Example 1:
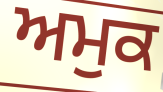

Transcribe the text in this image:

ਅਮੁਕ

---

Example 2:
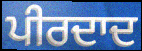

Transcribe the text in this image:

ਪੀਰਦਾਦ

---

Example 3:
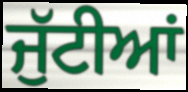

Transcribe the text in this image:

ਜੁੱਟੀਆਂ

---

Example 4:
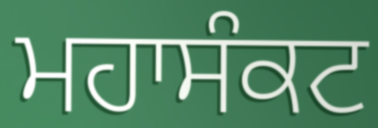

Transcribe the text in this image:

ਮਹਾਸੰਕਟ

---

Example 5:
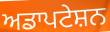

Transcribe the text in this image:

ਅਡਾਪਟੇਸ਼ਨ